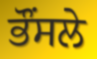
ਭੌਂਸਲੇ